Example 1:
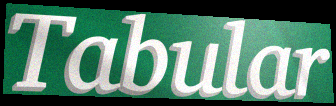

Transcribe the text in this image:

Tabular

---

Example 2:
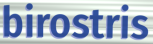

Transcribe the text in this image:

birostris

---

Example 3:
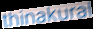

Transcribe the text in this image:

thinakural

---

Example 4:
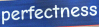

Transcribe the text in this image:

perfectness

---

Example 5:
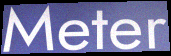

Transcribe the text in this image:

Meter